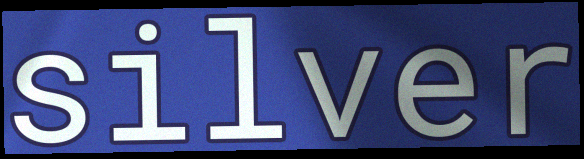
silver